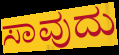
ಸಾವುದು